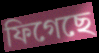
ফিগেছে